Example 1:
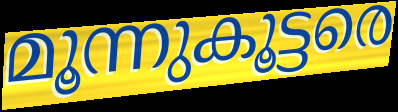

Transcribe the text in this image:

മൂന്നുകൂട്ടരെ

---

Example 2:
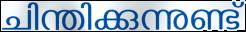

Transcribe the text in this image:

ചിന്തിക്കുന്നുണ്ട്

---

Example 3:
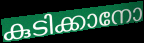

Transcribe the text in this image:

കുടിക്കാനോ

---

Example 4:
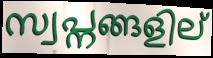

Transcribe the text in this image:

സ്വപ്നങ്ങളില്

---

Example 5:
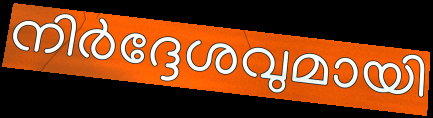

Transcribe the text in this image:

നിർദ്ദേശവുമായി